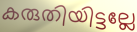
കരുതിയിട്ടല്ലേ